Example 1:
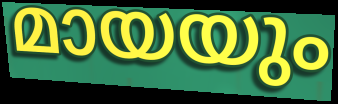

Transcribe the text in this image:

മായയും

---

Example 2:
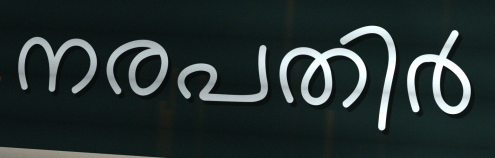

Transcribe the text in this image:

നരപതിർ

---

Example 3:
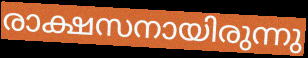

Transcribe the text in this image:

രാക്ഷസനായിരുന്നു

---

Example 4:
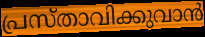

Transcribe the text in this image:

പ്രസ്താവിക്കുവാൻ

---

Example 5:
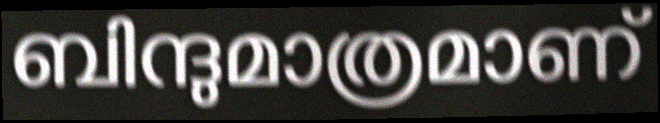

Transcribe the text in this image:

ബിന്ദുമാത്രമാണ്